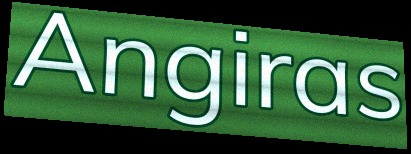
Angiras